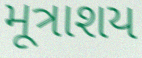
મૂત્રાશય